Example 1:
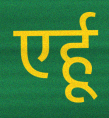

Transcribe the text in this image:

एर्हू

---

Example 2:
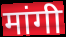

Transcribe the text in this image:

मांगी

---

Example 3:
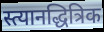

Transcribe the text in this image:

स्त्यानद्धित्रिक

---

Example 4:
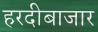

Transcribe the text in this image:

हरदीबाजार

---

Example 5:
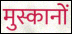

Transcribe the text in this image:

मुस्कानों